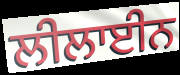
ਲੀਲਾਈਨ